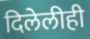
दिलेलीही